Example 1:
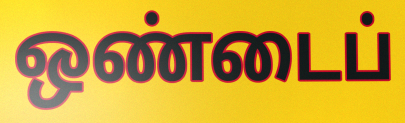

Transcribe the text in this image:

ஒண்டைப்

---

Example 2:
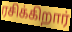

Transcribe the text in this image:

ரசிக்கிறார்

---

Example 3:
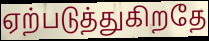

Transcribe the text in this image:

ஏற்படுத்துகிறதே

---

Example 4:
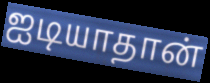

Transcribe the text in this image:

ஐடியாதான்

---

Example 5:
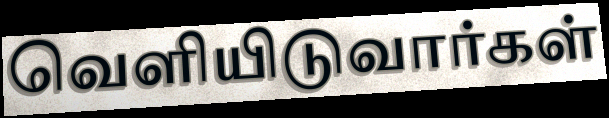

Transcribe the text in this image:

வெளியிடுவார்கள்